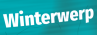
Winterwerp